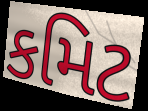
કમિટ